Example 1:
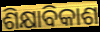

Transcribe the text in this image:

ଶିକ୍ଷାବିକାଶ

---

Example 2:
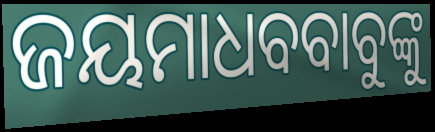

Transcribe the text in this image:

ଜୟମାଧବବାବୁଙ୍କୁ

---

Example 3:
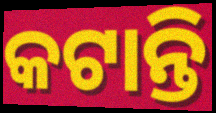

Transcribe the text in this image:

କଟାନ୍ତି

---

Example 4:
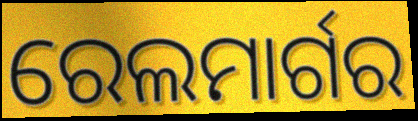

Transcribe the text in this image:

ରେଲମାର୍ଗର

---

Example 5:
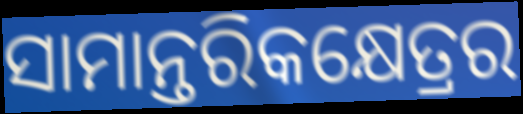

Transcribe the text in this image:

ସାମାନ୍ତରିକକ୍ଷେତ୍ରର